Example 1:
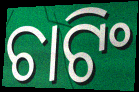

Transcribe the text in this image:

ଚାଟିଂ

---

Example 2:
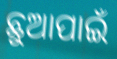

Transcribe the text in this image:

ଛୁଆପାଇଁ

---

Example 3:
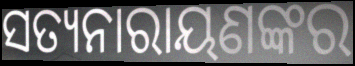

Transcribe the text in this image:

ସତ୍ୟନାରାୟଣଙ୍କର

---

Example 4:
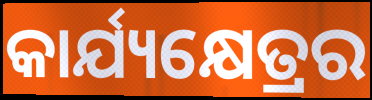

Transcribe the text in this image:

କାର୍ଯ୍ୟକ୍ଷେତ୍ରର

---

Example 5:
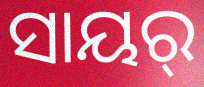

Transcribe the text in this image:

ସାୟର୍